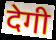
देगी